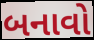
બનાવો